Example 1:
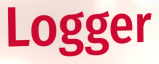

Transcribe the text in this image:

Logger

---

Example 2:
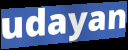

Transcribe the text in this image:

udayan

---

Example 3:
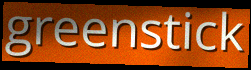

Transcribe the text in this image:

greenstick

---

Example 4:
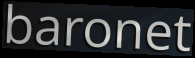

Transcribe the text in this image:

baronet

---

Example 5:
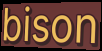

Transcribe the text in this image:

bison